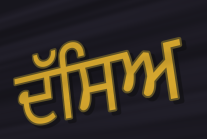
ਦੱਸਿਅ